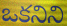
ఒకనిని